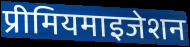
प्रीमियमाइजेशन